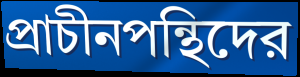
প্রাচীনপন্থিদের